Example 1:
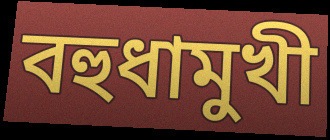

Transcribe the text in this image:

বহুধামুখী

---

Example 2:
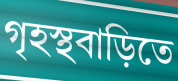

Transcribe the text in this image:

গৃহস্থবাড়িতে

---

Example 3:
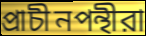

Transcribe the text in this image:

প্রাচীনপন্থীরা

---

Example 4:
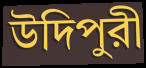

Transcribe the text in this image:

উদিপুরী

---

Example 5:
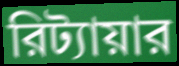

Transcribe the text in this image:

রিট্যায়ার